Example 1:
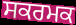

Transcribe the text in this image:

ਸਕਰਮਕ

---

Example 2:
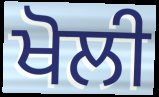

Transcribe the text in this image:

ਖੋਲੀ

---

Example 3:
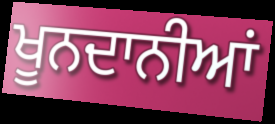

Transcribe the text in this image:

ਖੂਨਦਾਨੀਆਂ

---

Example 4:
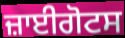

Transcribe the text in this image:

ਜ਼ਾਈਗੋਟਸ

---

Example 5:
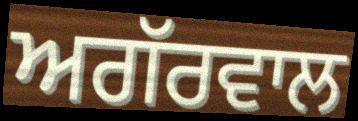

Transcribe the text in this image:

ਅਗੱਰਵਾਲ